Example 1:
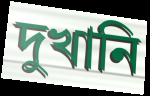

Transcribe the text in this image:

দুখানি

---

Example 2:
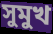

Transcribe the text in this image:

সুমুখ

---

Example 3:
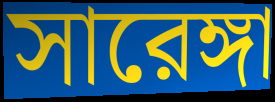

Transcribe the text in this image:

সারেঙ্গা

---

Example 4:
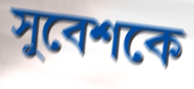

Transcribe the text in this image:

সুবেশকে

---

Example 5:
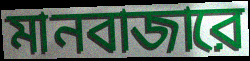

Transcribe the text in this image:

মানবাজারে